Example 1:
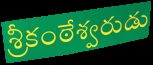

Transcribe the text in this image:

శ్రీకంఠేశ్వరుడు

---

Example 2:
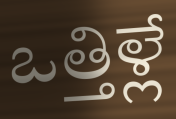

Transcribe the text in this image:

ఒత్తిళ్లే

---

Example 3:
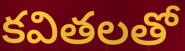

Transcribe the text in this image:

కవితలతో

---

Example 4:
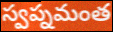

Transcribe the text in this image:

స్వప్నమంత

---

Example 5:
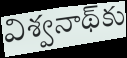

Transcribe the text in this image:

విశ్వనాథ్‌కు